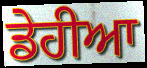
ਡੇਹੀਆ